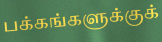
பக்கங்களுக்குக்